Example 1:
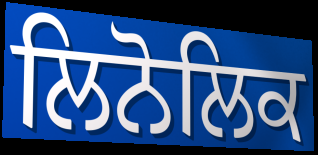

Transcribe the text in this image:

ਲਿਨੋਲਿਕ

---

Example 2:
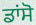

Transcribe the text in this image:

ਡਾਂਸੋ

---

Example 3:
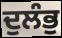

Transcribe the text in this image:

ਦੁਲੰਭੁ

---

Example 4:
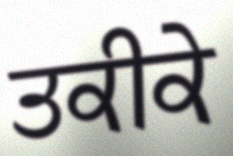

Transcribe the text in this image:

ਤਕੀਕੇ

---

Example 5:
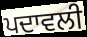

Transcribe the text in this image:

ਪਦਾਵਲੀ